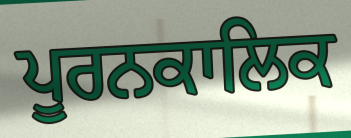
ਪੂਰਨਕਾਲਿਕ